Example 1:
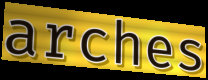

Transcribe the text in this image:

arches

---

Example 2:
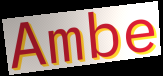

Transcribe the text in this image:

Ambe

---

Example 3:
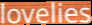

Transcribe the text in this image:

lovelies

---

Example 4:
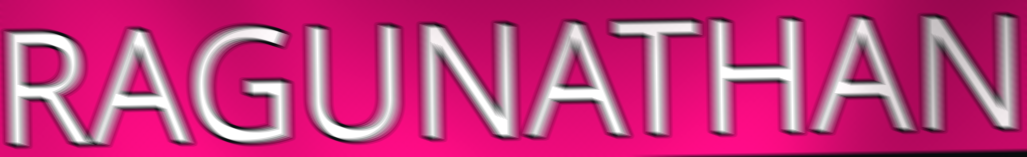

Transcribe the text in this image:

RAGUNATHAN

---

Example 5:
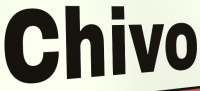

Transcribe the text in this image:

Chivo